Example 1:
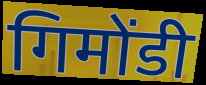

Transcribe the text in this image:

गिमोंडी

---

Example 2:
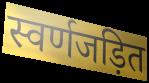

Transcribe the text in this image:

स्वर्णजड़ित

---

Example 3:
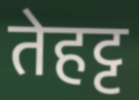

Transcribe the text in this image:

तेहट्ट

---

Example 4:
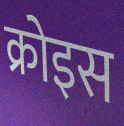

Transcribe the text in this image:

क्रोइस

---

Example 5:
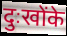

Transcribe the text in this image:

दुःखोंके